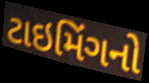
ટાઇમિંગનો